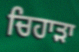
ਚਿਹਾੜਾ